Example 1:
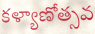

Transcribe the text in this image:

కళ్యాణోత్సవ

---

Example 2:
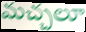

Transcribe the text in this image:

మచ్చలూ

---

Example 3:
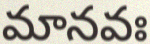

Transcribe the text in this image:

మానవః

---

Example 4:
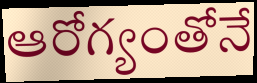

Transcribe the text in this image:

ఆరోగ్యంతోనే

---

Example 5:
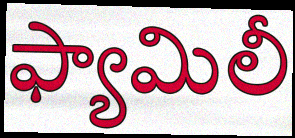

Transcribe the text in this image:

ఫ్యామిలీ